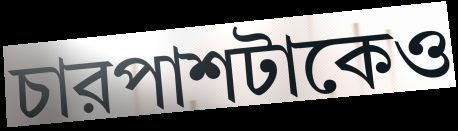
চারপাশটাকেও